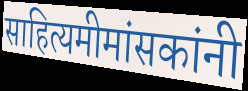
साहित्यमीमांसकांनी